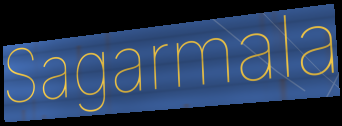
Sagarmala